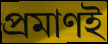
প্রমাণই